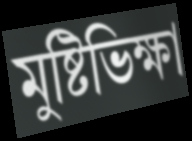
মুষ্টিভিক্ষা